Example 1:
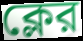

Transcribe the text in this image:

ক্লের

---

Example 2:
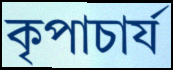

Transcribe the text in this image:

কৃপাচার্য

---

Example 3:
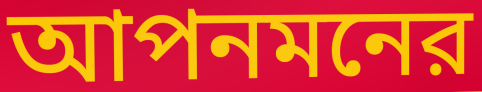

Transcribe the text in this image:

আপনমনের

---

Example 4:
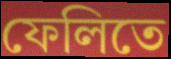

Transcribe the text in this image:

ফেলিতে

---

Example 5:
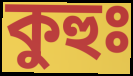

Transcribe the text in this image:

কুহুঃ